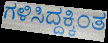
ಗಳಿಸಿದ್ದಕ್ಕಿಂತ